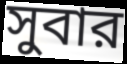
সুবার